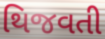
થિજવતી